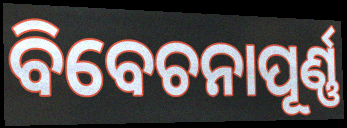
ବିବେଚନାପୂର୍ଣ୍ଣ